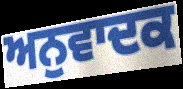
ਅਨੁਵਾਦਕ